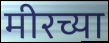
मीरच्या